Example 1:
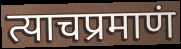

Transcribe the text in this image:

त्याचप्रमाणं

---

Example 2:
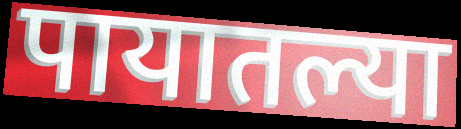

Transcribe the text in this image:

पायातल्या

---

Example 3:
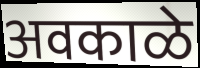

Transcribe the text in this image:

अवकाळे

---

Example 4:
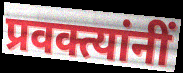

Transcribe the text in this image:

प्रवक्त्यांनीं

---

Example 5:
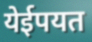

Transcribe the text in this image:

येईपयत